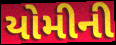
યોમીની